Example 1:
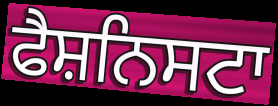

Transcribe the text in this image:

ਫੈਸ਼ਨਿਸਟਾ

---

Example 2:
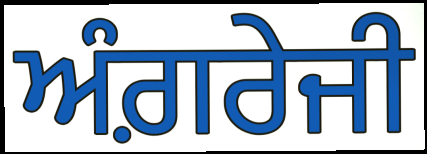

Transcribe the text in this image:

ਅੰਗ਼ਰੇਜੀ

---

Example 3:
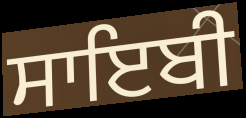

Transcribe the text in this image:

ਸਾਇਬੀ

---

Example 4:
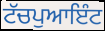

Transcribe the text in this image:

ਟੱਚਪੁਆਇੰਟ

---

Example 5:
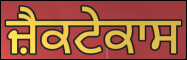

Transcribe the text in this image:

ਜ਼ੈਕਟੇਕਾਸ